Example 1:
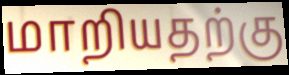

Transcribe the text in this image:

மாறியதற்கு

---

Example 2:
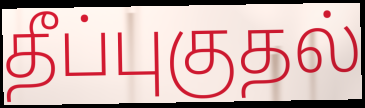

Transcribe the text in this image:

தீப்புகுதல்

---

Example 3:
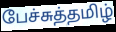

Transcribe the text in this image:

பேச்சுத்தமிழ்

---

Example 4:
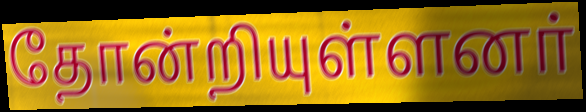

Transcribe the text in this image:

தோன்றியுள்ளனர்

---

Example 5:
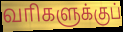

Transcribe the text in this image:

வரிகளுக்குப்